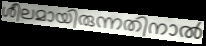
ശീലമായിരുന്നതിനാൽ